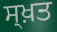
ਸ੍ਖ਼ਤ